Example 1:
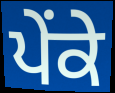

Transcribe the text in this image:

ਪੇਂਕੇ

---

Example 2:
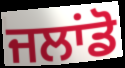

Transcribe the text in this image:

ਜਲਾਂਡੋ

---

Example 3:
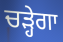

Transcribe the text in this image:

ਚੜ੍ਹੇਗਾ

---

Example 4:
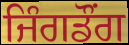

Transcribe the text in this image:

ਜਿੰਗਡੌਂਗ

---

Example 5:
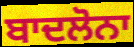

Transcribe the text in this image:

ਬਾਦਲੋਨਾ